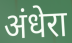
अंधेरा